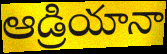
ఆడ్రియానా